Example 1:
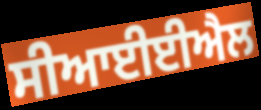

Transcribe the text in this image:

ਸੀਆਈਈਐਲ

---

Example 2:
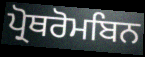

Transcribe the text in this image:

ਪ੍ਰੋਥਰੋਮਬਿਨ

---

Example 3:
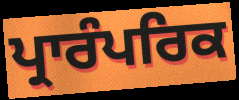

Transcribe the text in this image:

ਪ੍ਰਾਰੰਪਰਿਕ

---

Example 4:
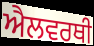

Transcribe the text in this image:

ਐਲਵਰਥੀ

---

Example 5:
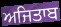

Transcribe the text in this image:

ਅਜਿਤਾਬ